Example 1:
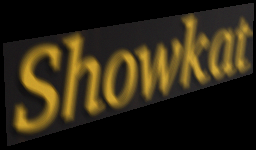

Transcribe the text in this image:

Showkat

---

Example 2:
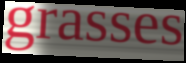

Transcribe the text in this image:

grasses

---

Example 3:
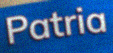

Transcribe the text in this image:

Patria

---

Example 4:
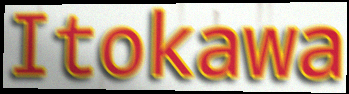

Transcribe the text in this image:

Itokawa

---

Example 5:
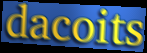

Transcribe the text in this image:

dacoits